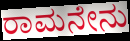
ರಾಮನೇನು